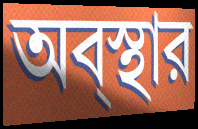
অব্স্থার